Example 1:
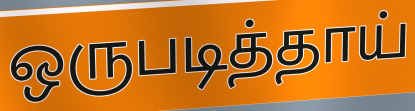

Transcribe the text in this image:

ஒருபடித்தாய்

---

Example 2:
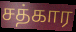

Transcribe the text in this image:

சத்கார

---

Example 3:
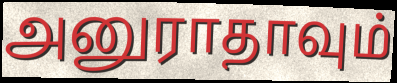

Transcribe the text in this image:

அனுராதாவும்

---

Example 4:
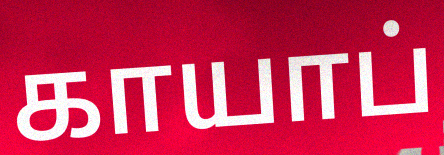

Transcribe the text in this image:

காயாப்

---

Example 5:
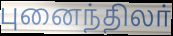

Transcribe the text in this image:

புனைந்திலர்